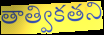
తాత్వికతని